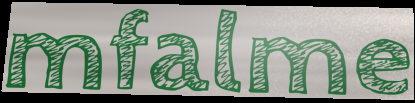
mfalme